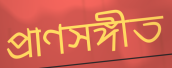
প্রাণসঙ্গীত